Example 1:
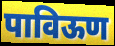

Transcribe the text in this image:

पाविऊण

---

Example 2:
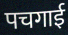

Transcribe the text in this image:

पचगाई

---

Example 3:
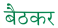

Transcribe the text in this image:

बैठकर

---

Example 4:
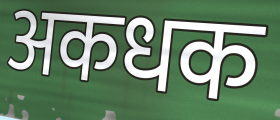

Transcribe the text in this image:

अकधक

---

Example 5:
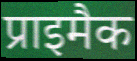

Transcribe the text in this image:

प्राइमैक